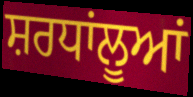
ਸ਼ਰਧਾਂਲੂਆਂ